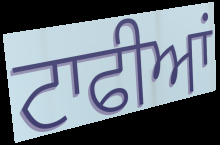
ਟਾਫੀਆਂ